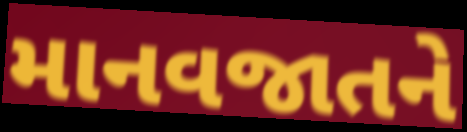
માનવજાતને